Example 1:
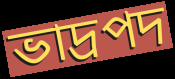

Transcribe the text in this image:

ভাদ্রপদ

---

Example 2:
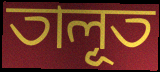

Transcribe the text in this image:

তালূত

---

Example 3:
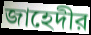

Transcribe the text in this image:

জাহেদীর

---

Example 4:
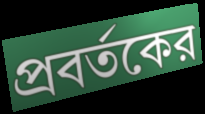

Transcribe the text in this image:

প্রবর্তকের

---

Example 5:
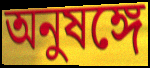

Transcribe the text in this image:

অনুষঙ্গে